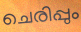
ചെരിപ്പും